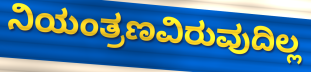
ನಿಯಂತ್ರಣವಿರುವುದಿಲ್ಲ